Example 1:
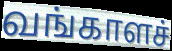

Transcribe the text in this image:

வங்காளச்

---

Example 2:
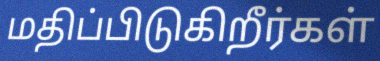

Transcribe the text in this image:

மதிப்பிடுகிறீர்கள்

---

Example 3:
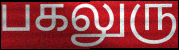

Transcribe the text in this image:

பகலுரு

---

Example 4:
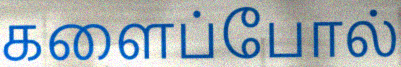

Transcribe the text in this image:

களைப்போல்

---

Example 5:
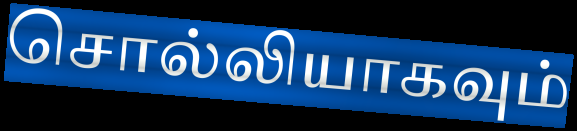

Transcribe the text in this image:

சொல்லியாகவும்